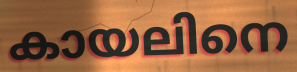
കായലിനെ